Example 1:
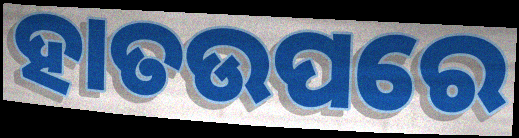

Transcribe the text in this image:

ହାତଉପରେ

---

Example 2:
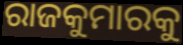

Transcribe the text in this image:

ରାଜକୁମାରକୁ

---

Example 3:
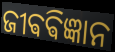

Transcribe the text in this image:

ଜୀଵଵିଜ୍ଞାନ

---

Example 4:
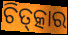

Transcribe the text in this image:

ଚିତ୍‌ତ୍କାର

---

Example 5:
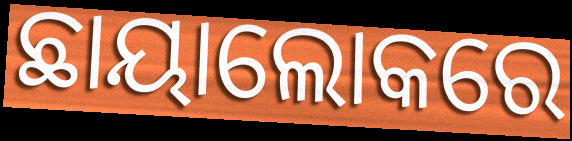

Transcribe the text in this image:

ଛାୟାଲୋକରେ